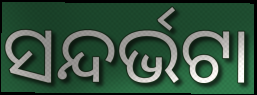
ସନ୍ଦର୍ଭଟା